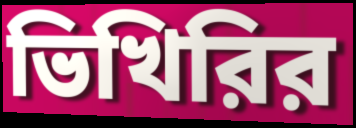
ভিখিরির